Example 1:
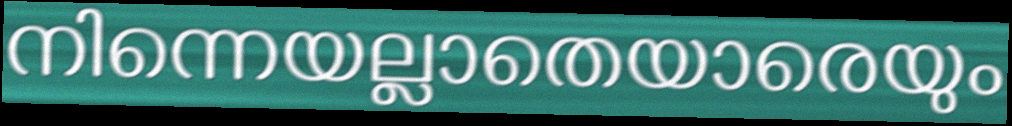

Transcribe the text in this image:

നിന്നെയല്ലാതെയാരെയും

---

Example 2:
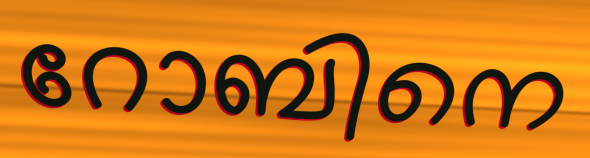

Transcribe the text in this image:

റോബിനെ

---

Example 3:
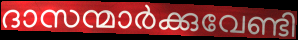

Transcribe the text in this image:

ദാസന്മാർക്കുവേണ്ടി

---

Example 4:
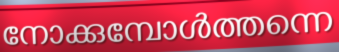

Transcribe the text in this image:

നോക്കുമ്പോൾത്തന്നെ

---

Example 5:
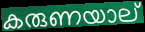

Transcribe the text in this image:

കരുണയാല്